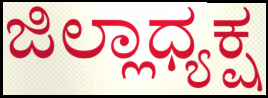
ಜಿಲ್ಲಾಧ್ಯಕ್ಷ